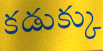
కడుక్కు